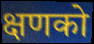
क्षणको